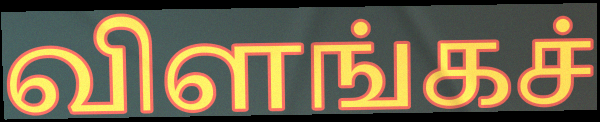
விளங்கச்